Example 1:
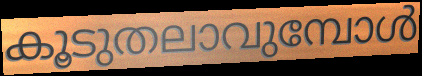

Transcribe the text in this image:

കൂടുതലാവുമ്പോൾ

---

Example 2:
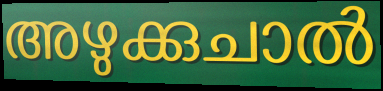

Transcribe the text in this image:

അഴുക്കുചാൽ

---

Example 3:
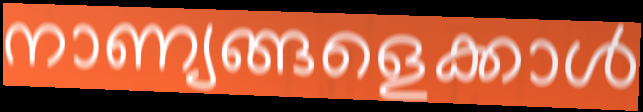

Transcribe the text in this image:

നാണ്യങ്ങളെക്കാൾ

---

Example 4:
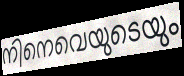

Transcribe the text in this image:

നിനെവെയുടെയും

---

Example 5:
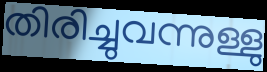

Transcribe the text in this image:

തിരിച്ചുവന്നുള്ളു